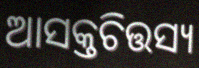
ଆସକ୍ତଚିତ୍ତସ୍ୟ